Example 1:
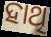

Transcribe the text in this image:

ହାଥି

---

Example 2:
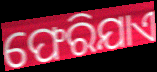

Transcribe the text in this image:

ଫେରିଯାଏ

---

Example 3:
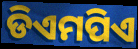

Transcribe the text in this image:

ଡିଏମପିଏ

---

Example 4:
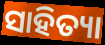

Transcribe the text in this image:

ସାହିତ୍ୟା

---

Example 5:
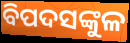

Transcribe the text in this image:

ବିପଦସଙ୍କୁଳ